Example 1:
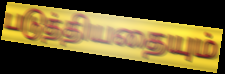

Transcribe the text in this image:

படுத்தியதையும்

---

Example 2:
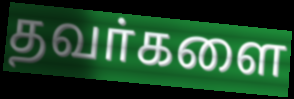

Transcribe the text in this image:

தவர்களை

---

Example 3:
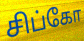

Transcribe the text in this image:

சிப்கோ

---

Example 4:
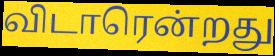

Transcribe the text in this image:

விடாரென்றது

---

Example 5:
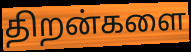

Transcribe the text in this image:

திறன்களை